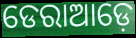
ଡେରାଆଡ଼େ